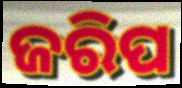
ଜରିପ